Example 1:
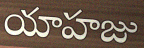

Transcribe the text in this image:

యాహజు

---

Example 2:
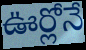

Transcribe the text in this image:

ఊర్లోనే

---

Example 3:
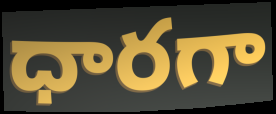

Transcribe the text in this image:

ధారగా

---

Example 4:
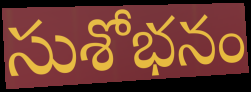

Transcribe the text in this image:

సుశోభనం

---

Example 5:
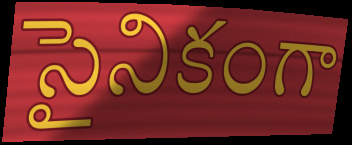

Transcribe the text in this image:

సైనికంగా